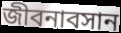
জীবনাবসান